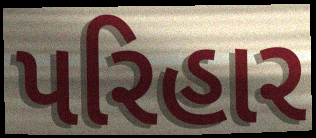
પરિહાર